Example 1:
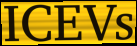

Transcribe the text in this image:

ICEVs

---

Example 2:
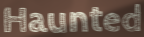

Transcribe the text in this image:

Haunted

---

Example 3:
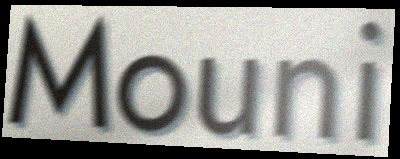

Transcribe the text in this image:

Mouni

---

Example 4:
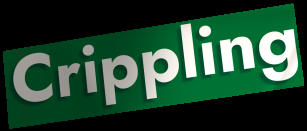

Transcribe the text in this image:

Crippling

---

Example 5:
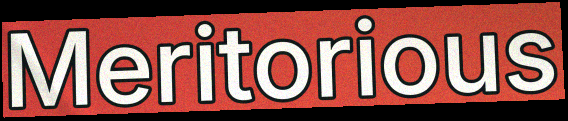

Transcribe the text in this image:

Meritorious